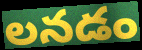
లనడం